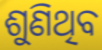
ଶୁଣିଥିବ